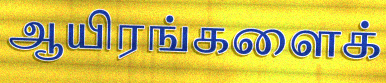
ஆயிரங்களைக்